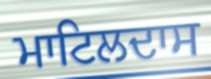
ਮਾਟਿਲਦਾਸ